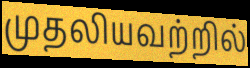
முதலியவற்றில்